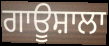
ਗਾਊਸ਼ਾਲਾ